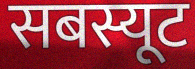
सबस्यूट